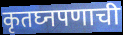
कृतघ्नपणाची